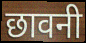
छावनी